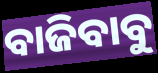
ବାଜିବାବୁ